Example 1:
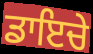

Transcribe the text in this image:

ਡਾਇਚੇ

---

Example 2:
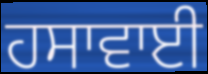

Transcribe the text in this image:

ਹਸਾਵਾਈ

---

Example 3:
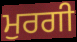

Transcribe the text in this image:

ਮੁਰਗੀ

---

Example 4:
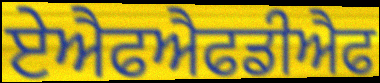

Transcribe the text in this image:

ਏਐਫਐਫਡੀਐਫ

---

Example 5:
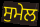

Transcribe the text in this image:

ਸੁਮੇਲ